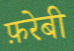
फ़रेबी